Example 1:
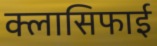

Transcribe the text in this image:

क्लासिफाई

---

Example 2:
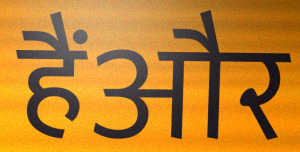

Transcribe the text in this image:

हैंऔर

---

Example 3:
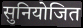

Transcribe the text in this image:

सुनियोजित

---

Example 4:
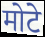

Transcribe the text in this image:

मोटे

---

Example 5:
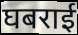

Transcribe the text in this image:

घबराई